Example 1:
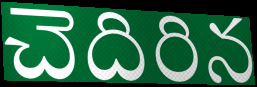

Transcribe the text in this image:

చెదిరిన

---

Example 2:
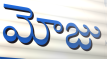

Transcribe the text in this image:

మోజు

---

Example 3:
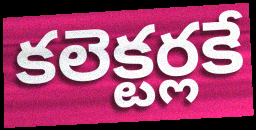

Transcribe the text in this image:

కలెక్టర్లకే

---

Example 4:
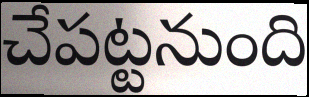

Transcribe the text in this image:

చేపట్టనుంది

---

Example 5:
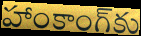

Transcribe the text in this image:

హాంకాంగ్‌కు